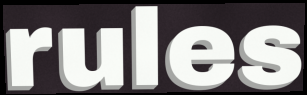
rules